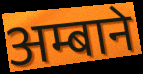
अम्बाने